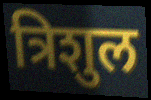
त्रिशुल